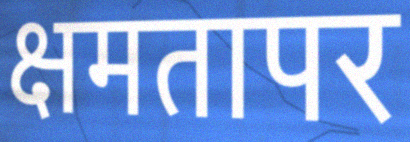
क्षमतापर